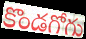
కొండగోగు